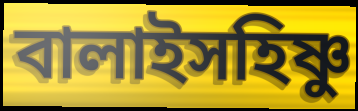
বালাইসহিষ্ণু